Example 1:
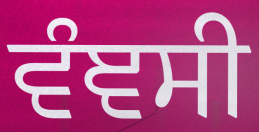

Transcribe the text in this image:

ਵੰਞਸੀ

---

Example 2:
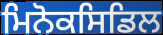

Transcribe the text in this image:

ਮਿਨੋਕਸਿਡਿਲ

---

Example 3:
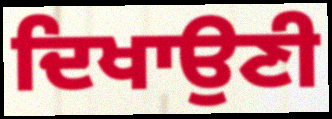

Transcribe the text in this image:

ਦਿਖਾਉਣੀ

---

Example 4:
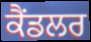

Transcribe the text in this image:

ਕੈਂਡਲਰ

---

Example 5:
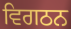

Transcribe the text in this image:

ਵਿਗਠਨ